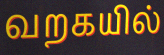
வறகயில்